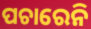
ପଚାରେନି